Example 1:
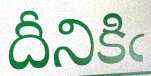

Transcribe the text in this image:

దీనికిఁ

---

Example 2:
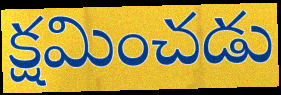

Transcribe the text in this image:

క్షమించడు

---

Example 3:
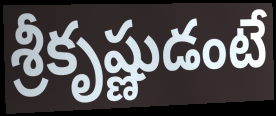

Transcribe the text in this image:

శ్రీకృష్ణుడంటే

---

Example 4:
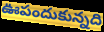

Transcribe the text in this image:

ఊపందుకున్నది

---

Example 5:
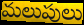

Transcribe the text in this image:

మలుపులు